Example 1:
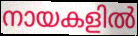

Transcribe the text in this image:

നായകളിൽ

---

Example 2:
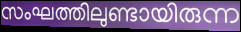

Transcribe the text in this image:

സംഘത്തിലുണ്ടായിരുന്ന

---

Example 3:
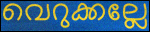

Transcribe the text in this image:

വെറുക്കല്ലേ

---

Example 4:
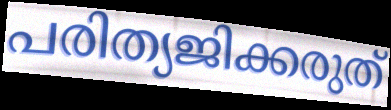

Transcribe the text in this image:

പരിത്യജിക്കരുത്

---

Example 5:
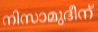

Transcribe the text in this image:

നിസാമുദീന്